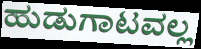
ಹುಡುಗಾಟವಲ್ಲ